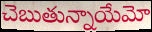
చెబుతున్నాయేమో